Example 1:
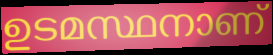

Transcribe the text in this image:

ഉടമസ്ഥനാണ്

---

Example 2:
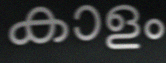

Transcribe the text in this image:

കാളം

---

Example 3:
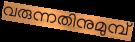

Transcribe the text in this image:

വരുന്നതിനുമുമ്പ്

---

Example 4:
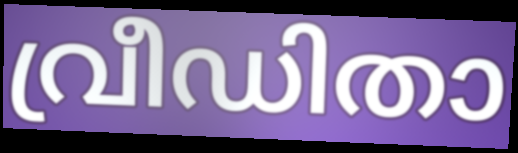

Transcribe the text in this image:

വ്രീഡിതാ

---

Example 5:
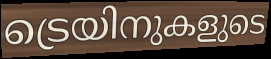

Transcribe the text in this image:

ട്രെയിനുകളുടെ